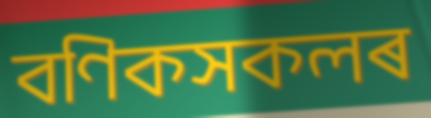
বণিকসকলৰ